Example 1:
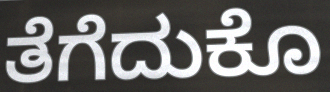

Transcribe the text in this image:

ತೆಗೆದುಕೊ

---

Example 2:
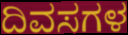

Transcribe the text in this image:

ದಿವಸಗಳ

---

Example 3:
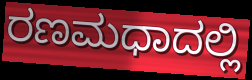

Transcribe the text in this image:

ರಣಮಧಾದಲ್ಲಿ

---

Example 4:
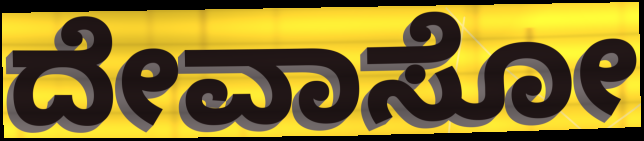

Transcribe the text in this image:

ದೇವಾಸೋ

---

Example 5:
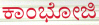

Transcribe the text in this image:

ಕಾಂಭೋಜಿ